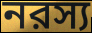
নরস্য